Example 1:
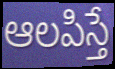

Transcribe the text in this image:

ఆలపిస్తే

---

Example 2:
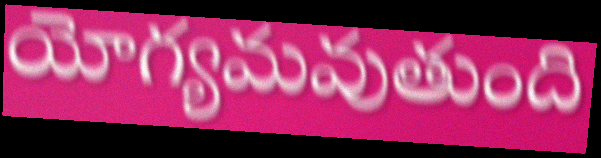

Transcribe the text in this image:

యోగ్యమవుతుంది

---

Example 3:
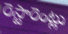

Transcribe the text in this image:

రెస్టారెంట్లు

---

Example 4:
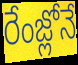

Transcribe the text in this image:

రేంజ్లోనే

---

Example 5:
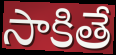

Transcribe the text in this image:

సాకితే